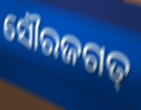
ସୌରଜଗତ୍